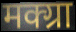
मक्ग्रा